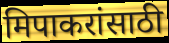
मिपाकरांसाठी